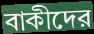
বাকীদের